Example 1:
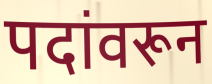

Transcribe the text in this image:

पदांवरून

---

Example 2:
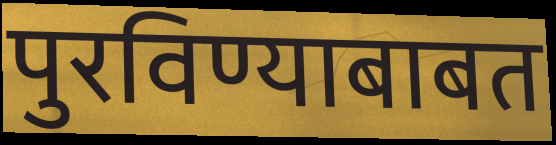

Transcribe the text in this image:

पुरविण्याबाबत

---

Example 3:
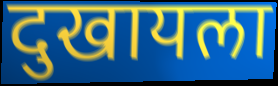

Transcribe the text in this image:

दुखायला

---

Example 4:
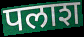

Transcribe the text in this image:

पलाश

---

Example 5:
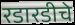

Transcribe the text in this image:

रडारडीचे